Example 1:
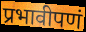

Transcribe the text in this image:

प्रभावीपणं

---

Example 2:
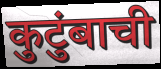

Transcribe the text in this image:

कुटुंबाची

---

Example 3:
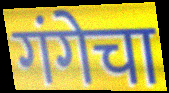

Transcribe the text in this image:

गंगेचा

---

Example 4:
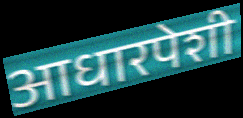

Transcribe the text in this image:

आधारपेशी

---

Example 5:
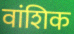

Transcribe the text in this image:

वांशिक